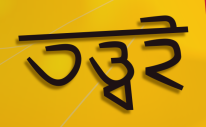
তত্ত্বই